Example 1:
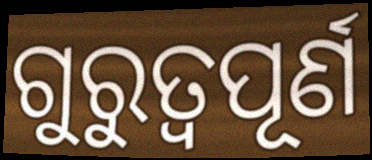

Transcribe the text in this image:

ଗୁରୁତ୍ୱପୂର୍ଣ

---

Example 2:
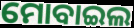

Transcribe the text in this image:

ମୋବାଇଲ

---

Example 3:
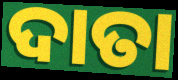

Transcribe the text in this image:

ଦାତା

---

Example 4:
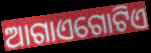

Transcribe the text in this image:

ଆଗାଏଗୋଟିଏ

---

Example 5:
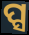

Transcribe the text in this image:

ପ୍ସ